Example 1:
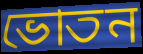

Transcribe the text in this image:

ভোতন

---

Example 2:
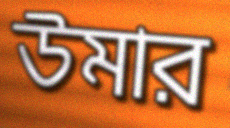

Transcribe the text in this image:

উমার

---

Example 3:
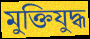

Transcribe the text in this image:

মুক্তিযুদ্ধ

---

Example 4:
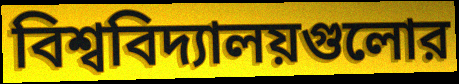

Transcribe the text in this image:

বিশ্ববিদ্যালয়গুলোর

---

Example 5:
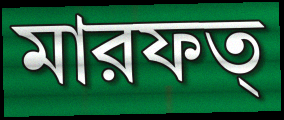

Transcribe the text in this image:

মারফত্